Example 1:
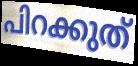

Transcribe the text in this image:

പിറക്കുത്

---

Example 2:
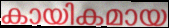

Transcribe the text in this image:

കായികമായ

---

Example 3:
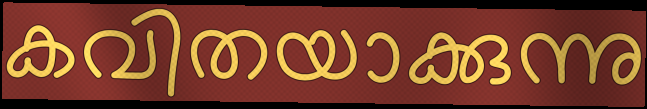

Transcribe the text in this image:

കവിതയാക്കുന്നു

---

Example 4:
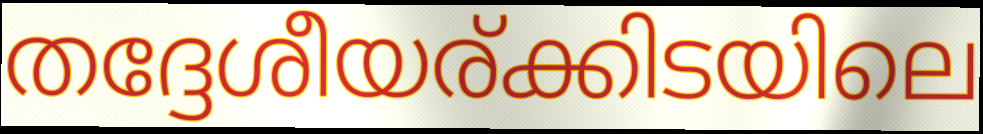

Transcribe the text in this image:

തദ്ദേശീയര്ക്കിടയിലെ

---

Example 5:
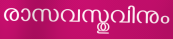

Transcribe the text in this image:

രാസവസ്തുവിനും